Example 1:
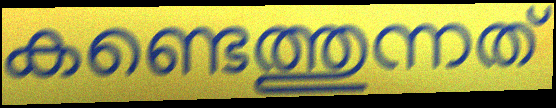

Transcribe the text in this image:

കണ്ടെത്തുന്നത്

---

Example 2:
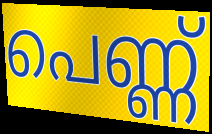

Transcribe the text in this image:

പെണ്ണ്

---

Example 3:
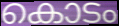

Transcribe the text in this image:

കൊടം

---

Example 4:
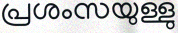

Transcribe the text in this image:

പ്രശംസയുള്ളു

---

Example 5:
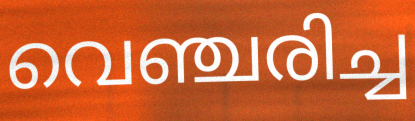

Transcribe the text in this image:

വെഞ്ചരിച്ച